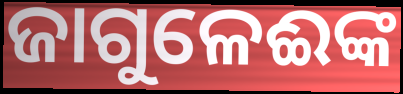
ଜାଗୁଳେଈଙ୍କ